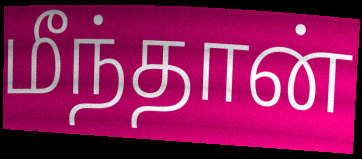
மீந்தான்